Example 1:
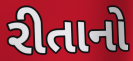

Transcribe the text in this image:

રીતાનો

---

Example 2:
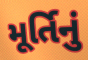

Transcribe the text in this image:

મૂર્તિનું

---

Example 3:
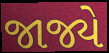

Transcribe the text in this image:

જાજ્યે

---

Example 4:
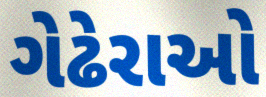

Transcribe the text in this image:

ગેઢેરાઓ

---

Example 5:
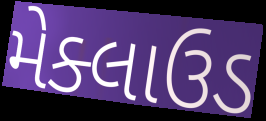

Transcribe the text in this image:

મેક્લાઉડ